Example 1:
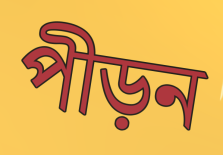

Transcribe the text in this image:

পীড়ন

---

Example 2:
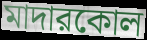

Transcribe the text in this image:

মাদারকোল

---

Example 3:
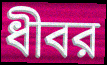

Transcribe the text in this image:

ধীবর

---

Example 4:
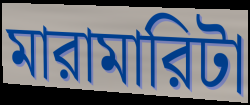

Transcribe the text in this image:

মারামারিটা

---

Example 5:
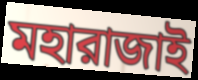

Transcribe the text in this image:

মহারাজাই